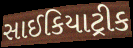
સાઈકિયાટ્રીક